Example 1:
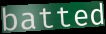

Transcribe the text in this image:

batted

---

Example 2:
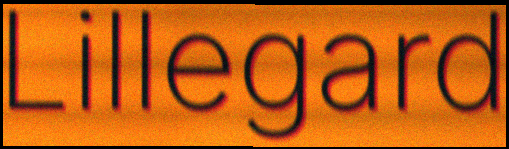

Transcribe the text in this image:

Lillegard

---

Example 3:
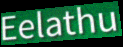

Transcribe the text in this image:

Eelathu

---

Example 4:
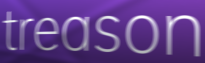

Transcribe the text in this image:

treason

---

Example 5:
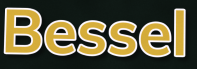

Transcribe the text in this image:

Bessel